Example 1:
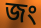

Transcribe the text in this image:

জং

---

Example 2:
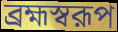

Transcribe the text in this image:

ব্রহ্মস্বরূপ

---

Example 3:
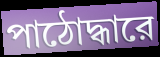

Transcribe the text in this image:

পাঠোদ্ধারে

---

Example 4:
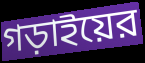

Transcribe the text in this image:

গড়াইয়ের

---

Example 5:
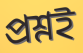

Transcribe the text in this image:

প্রশ্নই